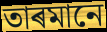
তাৰমানে